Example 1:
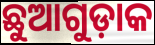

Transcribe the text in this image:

ଛୁଆଗୁଡ଼ାକ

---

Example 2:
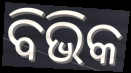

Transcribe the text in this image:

ବିଭିକ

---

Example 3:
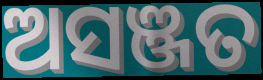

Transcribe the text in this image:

ଅସଞ୍ଜତ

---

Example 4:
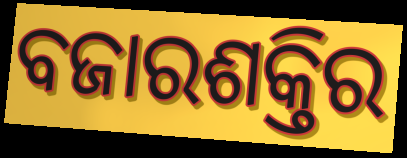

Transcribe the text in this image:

ବଜାରଶକ୍ତିର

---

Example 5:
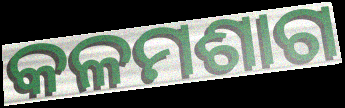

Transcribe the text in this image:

କଳମଶାଗ